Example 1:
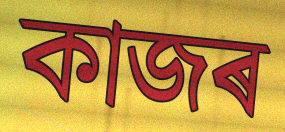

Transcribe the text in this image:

কাজৰ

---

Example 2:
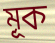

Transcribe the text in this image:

মূক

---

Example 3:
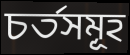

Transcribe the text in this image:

চৰ্তসমূহ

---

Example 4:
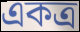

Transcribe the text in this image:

একত্ৰ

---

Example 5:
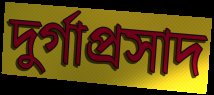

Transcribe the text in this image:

দুৰ্গাপ্ৰসাদ